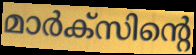
മാർക്സിന്റെ